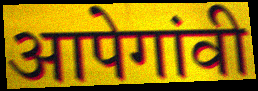
आपेगांवी